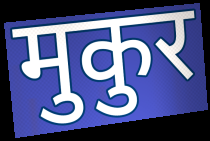
मुकुर